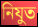
নিযুত